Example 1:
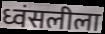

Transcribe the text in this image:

ध्वंसलीला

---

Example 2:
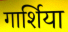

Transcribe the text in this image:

गार्शिया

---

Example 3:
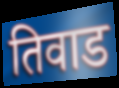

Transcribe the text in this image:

तिवाड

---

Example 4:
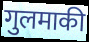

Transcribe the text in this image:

गुलमाकी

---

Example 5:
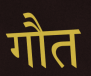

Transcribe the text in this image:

गौत